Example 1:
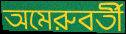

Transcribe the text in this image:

অমেরুবর্তী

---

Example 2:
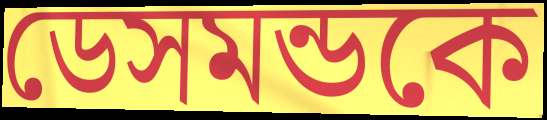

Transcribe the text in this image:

ডেসমন্ডকে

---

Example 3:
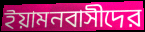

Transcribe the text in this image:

ইয়ামনবাসীদের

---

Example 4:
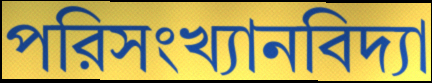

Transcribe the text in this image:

পরিসংখ্যানবিদ্যা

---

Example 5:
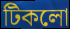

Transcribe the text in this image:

টিকলো